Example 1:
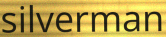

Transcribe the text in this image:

silverman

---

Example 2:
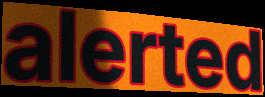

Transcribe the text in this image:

alerted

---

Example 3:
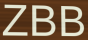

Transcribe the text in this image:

ZBB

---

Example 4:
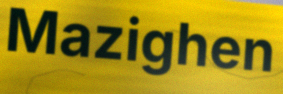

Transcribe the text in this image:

Mazighen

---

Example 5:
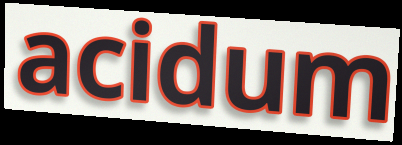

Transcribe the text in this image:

acidum